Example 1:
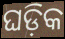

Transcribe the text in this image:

ଘଡ଼ିକ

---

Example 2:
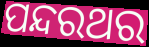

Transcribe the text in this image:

ପନ୍ଦରଥର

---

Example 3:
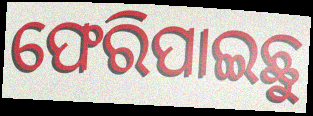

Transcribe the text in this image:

ଫେରିପାଇଛୁ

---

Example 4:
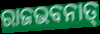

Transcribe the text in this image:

ରାଜଭବନାତ୍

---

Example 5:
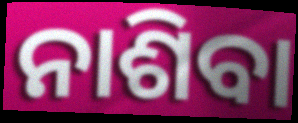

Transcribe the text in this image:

ନାଶିବା